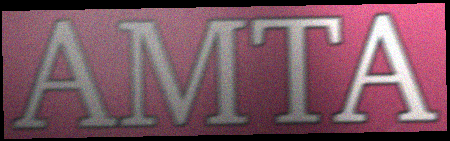
AMTA